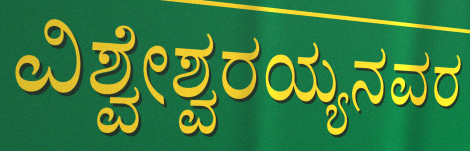
ವಿಶ್ವೇಶ್ವರಯ್ಯನವರ